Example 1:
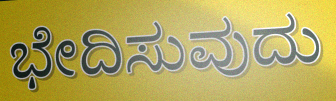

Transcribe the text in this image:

ಭೇದಿಸುವುದು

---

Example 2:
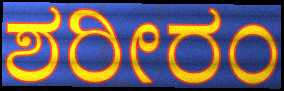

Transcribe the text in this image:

ಶರೀರಂ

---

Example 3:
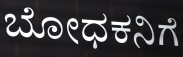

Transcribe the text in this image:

ಬೋಧಕನಿಗೆ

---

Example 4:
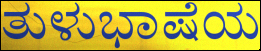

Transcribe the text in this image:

ತುಳುಭಾಷೆಯ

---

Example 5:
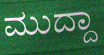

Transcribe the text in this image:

ಮುದ್ದಾ